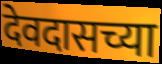
देवदासच्या